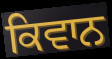
ਕਿਵਾਨ